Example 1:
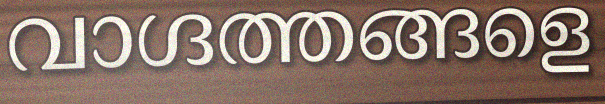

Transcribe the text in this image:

വാഗ്ദത്തങ്ങളെ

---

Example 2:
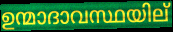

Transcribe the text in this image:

ഉന്മാദാവസ്ഥയില്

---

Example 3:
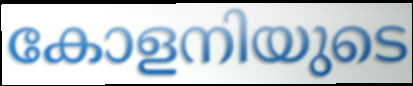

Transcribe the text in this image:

കോളനിയുടെ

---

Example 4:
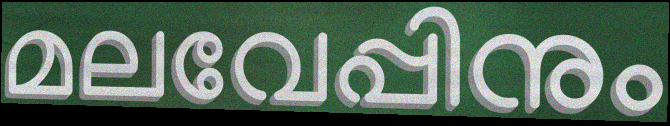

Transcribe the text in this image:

മലവേപ്പിനും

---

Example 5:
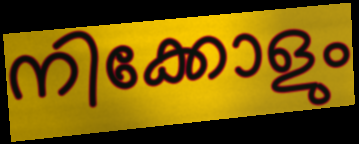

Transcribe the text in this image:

നിക്കോളും